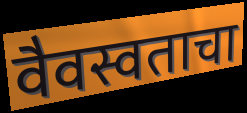
वैवस्वताचा